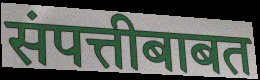
संपत्तीबाबत